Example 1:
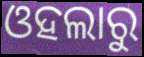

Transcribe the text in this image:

ଓହଲାରୁ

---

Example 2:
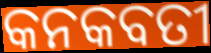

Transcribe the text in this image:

କନକବତୀ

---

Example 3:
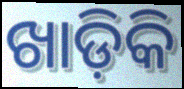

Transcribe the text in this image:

ଖାଡ଼ିକି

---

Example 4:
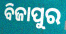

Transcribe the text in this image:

ବିଜାପୁର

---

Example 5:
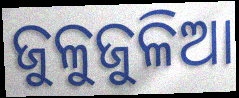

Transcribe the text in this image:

ଜୁଳୁଜୁଳିଆ